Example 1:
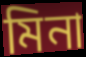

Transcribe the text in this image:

মিনা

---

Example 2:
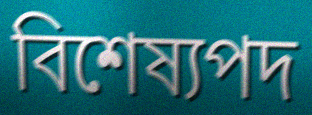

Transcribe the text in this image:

বিশেষ্যপদ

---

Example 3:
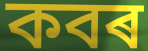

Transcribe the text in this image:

কবৰ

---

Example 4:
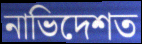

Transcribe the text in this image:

নাভিদেশত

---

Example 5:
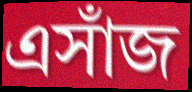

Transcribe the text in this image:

এসাঁজ